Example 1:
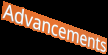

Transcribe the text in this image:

Advancements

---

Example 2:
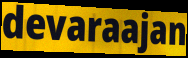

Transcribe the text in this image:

devaraajan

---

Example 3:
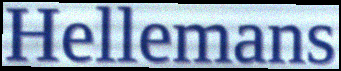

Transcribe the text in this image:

Hellemans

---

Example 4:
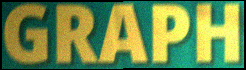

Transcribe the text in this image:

GRAPH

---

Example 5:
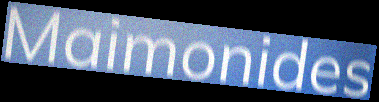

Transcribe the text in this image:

Maimonides